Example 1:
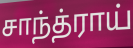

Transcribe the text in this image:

சாந்த்ராய்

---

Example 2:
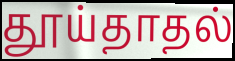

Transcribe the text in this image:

தூய்தாதல்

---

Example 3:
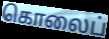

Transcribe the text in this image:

கொலைப்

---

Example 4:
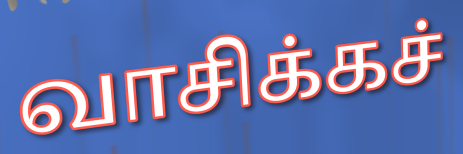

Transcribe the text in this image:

வாசிக்கச்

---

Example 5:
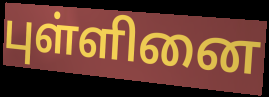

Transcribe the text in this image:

புள்ளினை